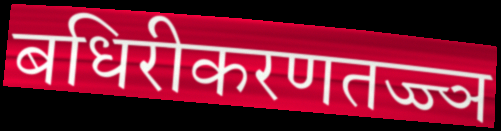
बधिरीकरणतज्ज्ञ